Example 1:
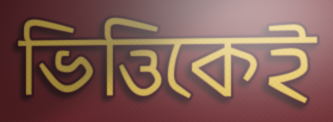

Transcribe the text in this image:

ভিত্তিকেই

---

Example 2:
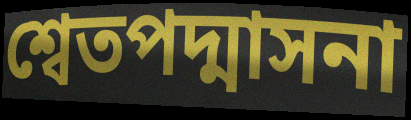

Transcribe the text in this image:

শ্বেতপদ্মাসনা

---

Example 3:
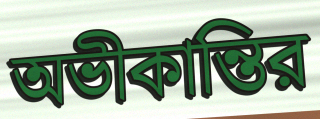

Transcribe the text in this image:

অভীকান্তির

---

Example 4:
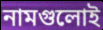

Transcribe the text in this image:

নামগুলোই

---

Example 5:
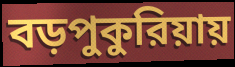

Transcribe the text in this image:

বড়পুকুরিয়ায়